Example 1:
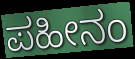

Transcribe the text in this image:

ಪಹೀನಂ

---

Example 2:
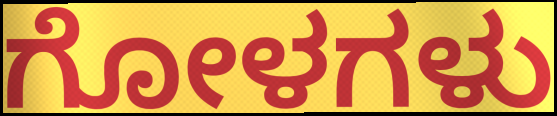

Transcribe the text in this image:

ಗೋಳಗಳು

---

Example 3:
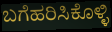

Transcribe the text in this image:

ಬಗೆಹರಿಸಿಕೊಳ್ಳಿ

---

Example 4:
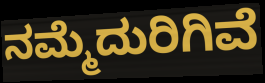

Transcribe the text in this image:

ನಮ್ಮೆದುರಿಗಿವೆ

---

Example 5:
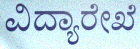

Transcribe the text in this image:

ವಿದ್ಯಾರೇಖೆ